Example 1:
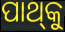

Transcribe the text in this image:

ପାଥ୍‌କୁ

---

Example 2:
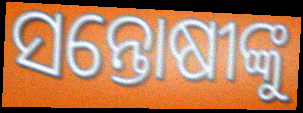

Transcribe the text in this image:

ସନ୍ତୋଷୀଙ୍କୁ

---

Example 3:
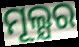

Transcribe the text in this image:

ମୂଲ୍ଯର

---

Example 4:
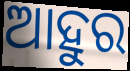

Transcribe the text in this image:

ଆହୁର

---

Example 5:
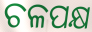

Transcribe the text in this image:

ଚଳପକ୍ଷ